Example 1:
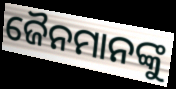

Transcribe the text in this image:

ଜୈନମାନଙ୍କୁ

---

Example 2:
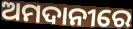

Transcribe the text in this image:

ଅମଦାନୀରେ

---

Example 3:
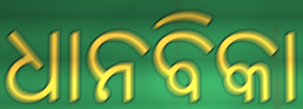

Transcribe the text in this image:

ଧାନବିକା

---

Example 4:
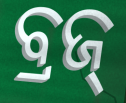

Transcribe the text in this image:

ବ୍ରଜ୍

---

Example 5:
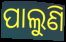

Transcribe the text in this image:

ପାଲୁଣି